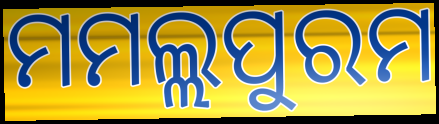
ମମଲ୍ଲପୁରମ